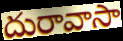
దురావాసా